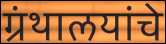
ग्रंथालयांचे